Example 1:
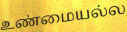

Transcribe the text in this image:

உண்மையல்ல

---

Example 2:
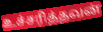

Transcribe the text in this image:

உச்சரித்தவன்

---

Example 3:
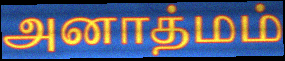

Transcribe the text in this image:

அனாத்மம்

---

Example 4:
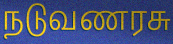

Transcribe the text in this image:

நடுவணரசு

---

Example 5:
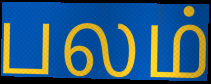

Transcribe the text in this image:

பலம்